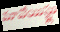
మావోయిస్ట్లు